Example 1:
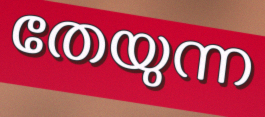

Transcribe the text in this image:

തേയുന്ന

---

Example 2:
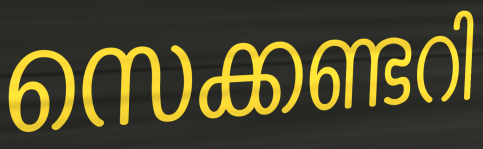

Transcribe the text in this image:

സെക്കണ്ടറി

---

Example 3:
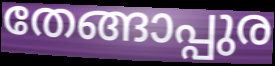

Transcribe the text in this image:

തേങ്ങാപ്പുര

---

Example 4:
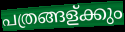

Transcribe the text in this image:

പത്രങ്ങള്ക്കും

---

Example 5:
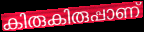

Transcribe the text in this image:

കിരുകിരുപ്പാണ്